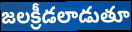
జలక్రీడలాడుతూ